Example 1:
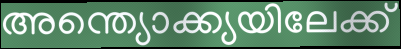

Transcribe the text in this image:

അന്ത്യൊക്ക്യയിലേക്ക്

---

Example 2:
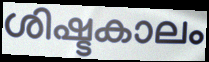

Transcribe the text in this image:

ശിഷ്ടകാലം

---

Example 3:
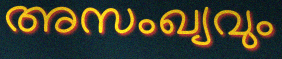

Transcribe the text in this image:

അസംഖ്യവും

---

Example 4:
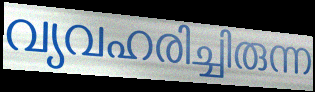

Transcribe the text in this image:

വ്യവഹരിച്ചിരുന്ന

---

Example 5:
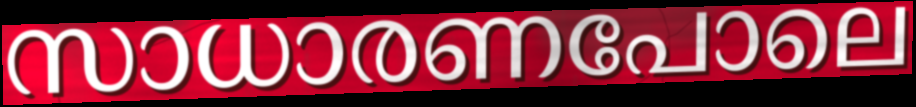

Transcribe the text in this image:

സാധാരണപോലെ